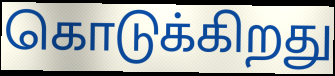
கொடுக்கிறது